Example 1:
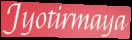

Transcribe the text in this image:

Jyotirmaya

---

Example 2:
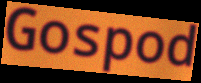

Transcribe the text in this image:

Gospod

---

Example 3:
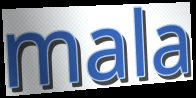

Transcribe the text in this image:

mala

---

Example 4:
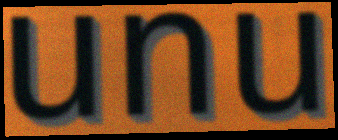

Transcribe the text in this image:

unu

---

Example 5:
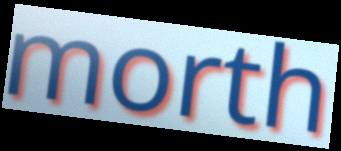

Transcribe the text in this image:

morth